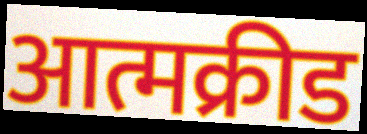
आत्मक्रीड